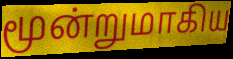
மூன்றுமாகிய